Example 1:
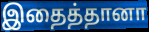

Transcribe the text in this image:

இதைத்தானா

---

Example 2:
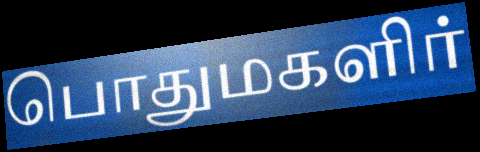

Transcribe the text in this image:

பொதுமகளிர்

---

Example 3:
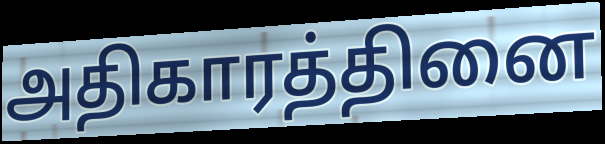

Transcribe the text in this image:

அதிகாரத்தினை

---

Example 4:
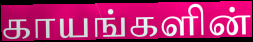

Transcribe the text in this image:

காயங்களின்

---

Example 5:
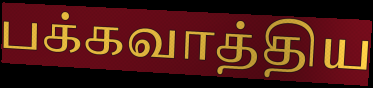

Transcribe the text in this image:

பக்கவாத்திய